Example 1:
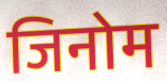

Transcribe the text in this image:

जिनोम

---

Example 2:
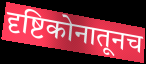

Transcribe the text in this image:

दृष्टिकोनातूनच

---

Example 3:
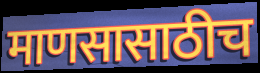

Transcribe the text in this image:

माणसासाठीच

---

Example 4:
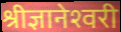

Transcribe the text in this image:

श्रीज्ञानेश्वरी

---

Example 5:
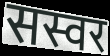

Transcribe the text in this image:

सस्वर